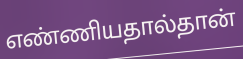
எண்ணியதால்தான்